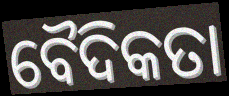
ବୈଦିକତା